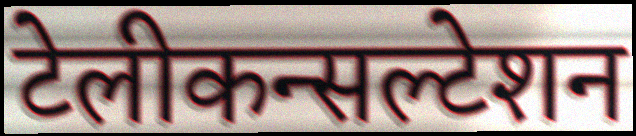
टेलीकन्सल्टेशन